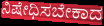
ನಿಷೇಧಿಸಬೇಕಾದ